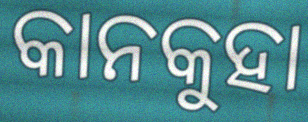
କାନକୁହା